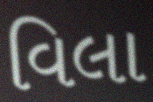
વિલા